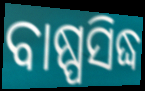
ବାଷ୍ପସିଦ୍ଧ